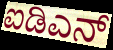
ಐಡಿಎನ್